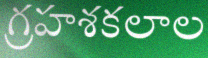
గ్రహశకలాల